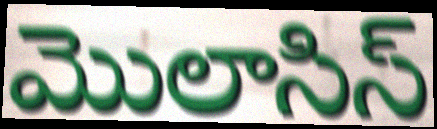
మొలాసిస్